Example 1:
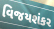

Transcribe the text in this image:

વિજયશંકર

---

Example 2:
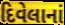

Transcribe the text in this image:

દિવેલાનાં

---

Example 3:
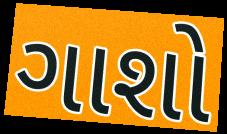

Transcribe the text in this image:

ગાશો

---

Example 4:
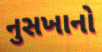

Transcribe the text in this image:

નુસખાનો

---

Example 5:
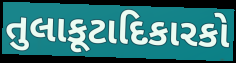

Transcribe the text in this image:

તુલાકૂટાદિકારકો